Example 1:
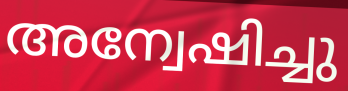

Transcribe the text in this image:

അന്വേഷിച്ചു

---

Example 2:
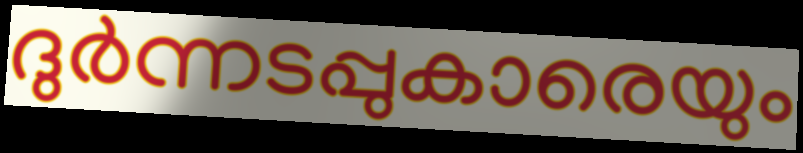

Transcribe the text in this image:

ദുർന്നടപ്പുകാരെയും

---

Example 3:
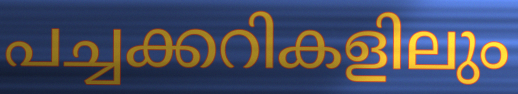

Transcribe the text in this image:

പച്ചക്കറികളിലും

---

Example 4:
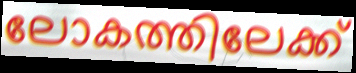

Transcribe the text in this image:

ലോകത്തിലേക്ക്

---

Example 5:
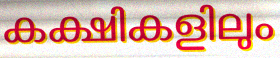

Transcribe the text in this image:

കക്ഷികളിലും